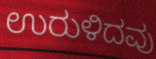
ಉರುಳಿದವು